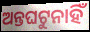
ଅନ୍ତଘଟୁନାହିଁ